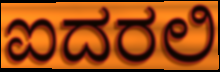
ಐದರಲಿ